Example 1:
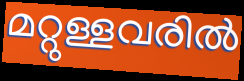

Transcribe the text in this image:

മറ്റുള്ളവരിൽ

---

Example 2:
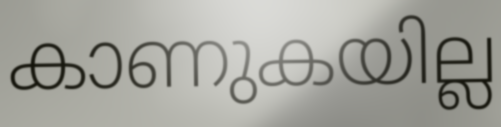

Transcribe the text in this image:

കാണുകയില്ല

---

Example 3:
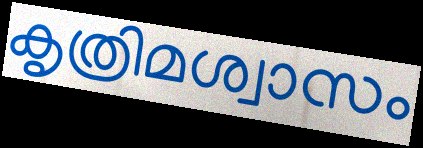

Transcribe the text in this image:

കൃത്രിമശ്വാസം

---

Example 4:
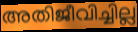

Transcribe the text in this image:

അതിജീവിച്ചില്ല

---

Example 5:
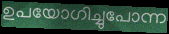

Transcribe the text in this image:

ഉപയോഗിച്ചുപോന്ന